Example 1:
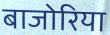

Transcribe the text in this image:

बाजोरिया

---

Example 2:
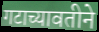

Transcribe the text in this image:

गटाच्यावतीने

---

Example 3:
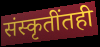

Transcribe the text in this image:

संस्कृतींतही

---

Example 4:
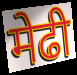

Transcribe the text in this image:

मेढी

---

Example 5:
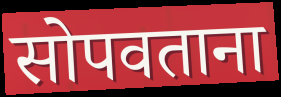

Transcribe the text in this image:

सोपवताना